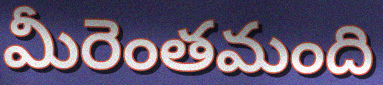
మీరెంతమంది